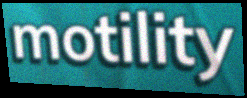
motility